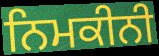
ਨਿਮਕੀਨੀ